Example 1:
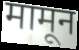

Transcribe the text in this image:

मामून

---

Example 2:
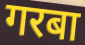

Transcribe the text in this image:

गरबा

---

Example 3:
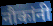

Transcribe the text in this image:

नौकांनी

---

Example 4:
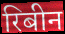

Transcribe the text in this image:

रिबीन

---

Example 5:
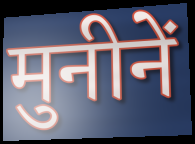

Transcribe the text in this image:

मुनीनें